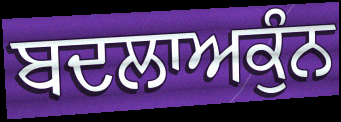
ਬਦਲਾਅਕੁੰਨ